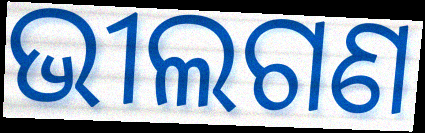
ଭୀଲଗଣ